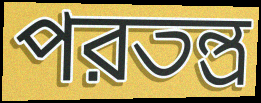
পরতন্ত্র